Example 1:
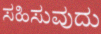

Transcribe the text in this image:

ಸಹಿಸುವುದು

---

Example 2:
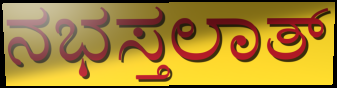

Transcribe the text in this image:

ನಭಸ್ತಲಾತ್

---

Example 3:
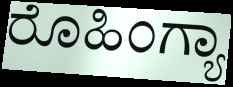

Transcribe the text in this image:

ರೊಹಿಂಗ್ಯಾ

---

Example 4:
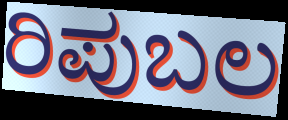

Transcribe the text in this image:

ರಿಪುಬಲ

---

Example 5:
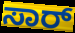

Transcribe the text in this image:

ಸಾರ್